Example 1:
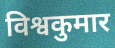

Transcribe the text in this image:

विश्वकुमार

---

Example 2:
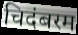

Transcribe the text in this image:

चिदंबरम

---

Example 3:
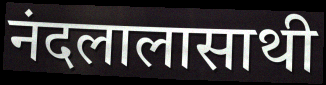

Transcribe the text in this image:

नंदलालासाथी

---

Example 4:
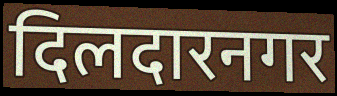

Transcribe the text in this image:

दिलदारनगर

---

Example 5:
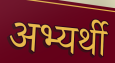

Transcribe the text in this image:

अभ्यर्थी